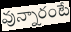
వున్నారంటే